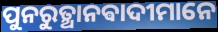
ପୁନରୁତ୍ଥାନଵାଦୀମାନେ